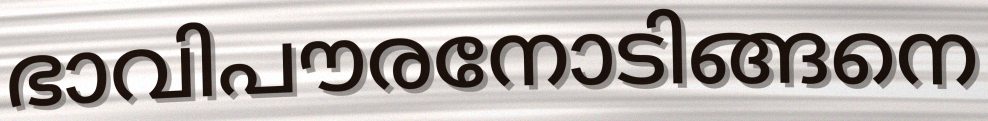
ഭാവിപൗരനോടിങ്ങനെ